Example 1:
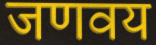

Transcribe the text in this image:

जणवय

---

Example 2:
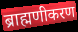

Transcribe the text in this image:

ब्राह्मणीकरण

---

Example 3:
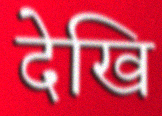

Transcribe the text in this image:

देखि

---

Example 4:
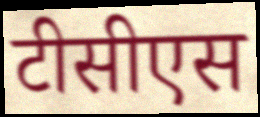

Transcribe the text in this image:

टीसीएस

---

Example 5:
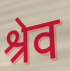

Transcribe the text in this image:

श्रेव